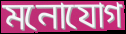
মনোযোগ